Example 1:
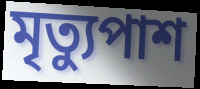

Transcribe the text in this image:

মৃত্যুপাশ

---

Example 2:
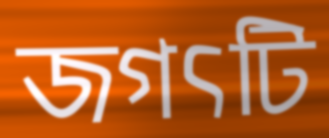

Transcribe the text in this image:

জগৎটি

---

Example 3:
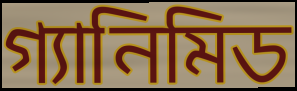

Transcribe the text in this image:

গ্যানিমিড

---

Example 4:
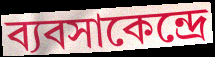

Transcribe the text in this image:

ব্যবসাকেন্দ্রে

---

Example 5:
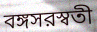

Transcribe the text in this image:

বঙ্গসরস্বতী